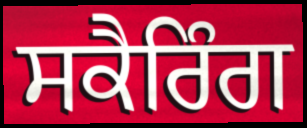
ਸਕੈਰਿੰਗ